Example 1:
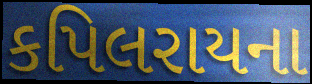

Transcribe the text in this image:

કપિલરાયના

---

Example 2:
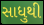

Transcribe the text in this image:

સાધુથી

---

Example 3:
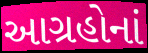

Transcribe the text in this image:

આગ્રહોનાં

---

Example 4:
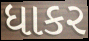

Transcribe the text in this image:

ધાકર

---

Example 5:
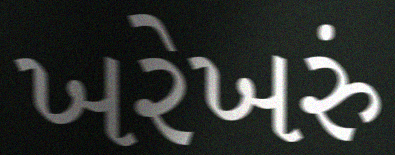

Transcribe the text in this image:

ખરેખરું